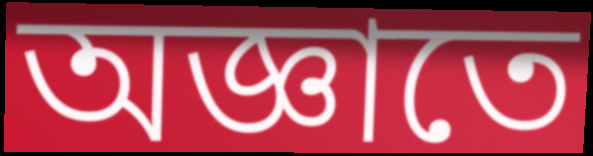
অজ্ঞাতে